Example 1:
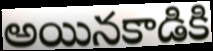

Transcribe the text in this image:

అయినకాడికి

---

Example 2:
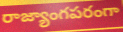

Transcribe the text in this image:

రాజ్యాంగపరంగా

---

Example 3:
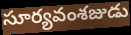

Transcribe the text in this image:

సూర్యవంశజుడు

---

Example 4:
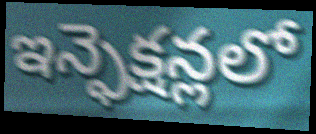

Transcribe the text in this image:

ఇన్ఫెక్షన్లలో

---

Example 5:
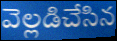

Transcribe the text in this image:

వెల్లడిచేసిన